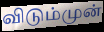
விடும்முன்